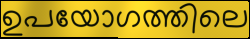
ഉപയോഗത്തിലെ